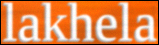
lakhela